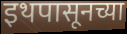
इथपासूनच्या